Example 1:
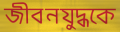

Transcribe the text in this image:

জীবনযুদ্ধকে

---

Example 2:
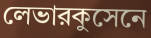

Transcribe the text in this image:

লেভারকুসেনে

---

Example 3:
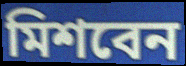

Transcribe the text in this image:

মিশবেন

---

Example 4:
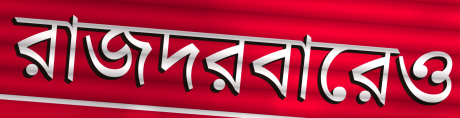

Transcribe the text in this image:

রাজদরবারেও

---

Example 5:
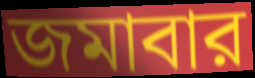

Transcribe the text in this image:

জমাবার